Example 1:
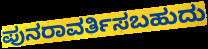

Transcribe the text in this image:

ಪುನರಾವರ್ತಿಸಬಹುದು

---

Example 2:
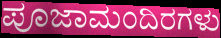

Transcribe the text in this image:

ಪೂಜಾಮಂದಿರಗಳು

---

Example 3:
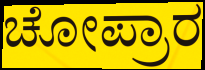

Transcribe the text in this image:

ಚೋಪ್ರಾರ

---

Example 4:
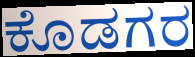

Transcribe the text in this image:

ಕೊಡಗರ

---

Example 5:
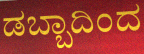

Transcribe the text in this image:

ಡಬ್ಬಾದಿಂದ